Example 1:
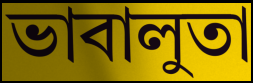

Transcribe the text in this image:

ভাবালুতা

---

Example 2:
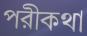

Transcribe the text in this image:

পরীকথা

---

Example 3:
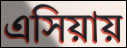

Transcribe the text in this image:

এসিয়ায়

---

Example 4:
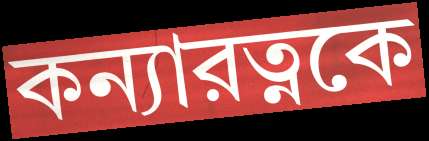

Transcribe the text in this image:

কন্যারত্নকে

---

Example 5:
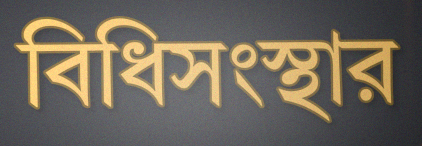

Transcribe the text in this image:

বিধিসংস্থার